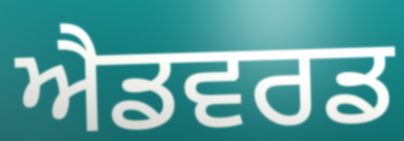
ਐਡਵਰਡ